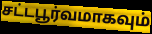
சட்டபூர்வமாகவும்